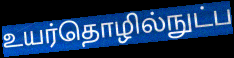
உயர்தொழில்நுட்ப